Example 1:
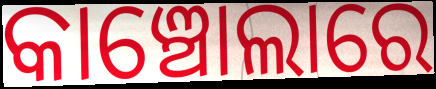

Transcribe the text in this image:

କାଞ୍ଚୋଲାରେ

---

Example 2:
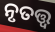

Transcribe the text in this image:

ନୃତତ୍ତ୍ଵ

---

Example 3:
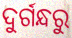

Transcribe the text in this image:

ଦୁର୍ଗନ୍ଧରୁ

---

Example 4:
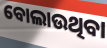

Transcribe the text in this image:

ବୋଲାଉଥିବା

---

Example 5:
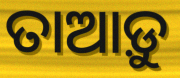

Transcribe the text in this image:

ତାଆଡ଼ୁ